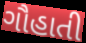
ગૌહાતી